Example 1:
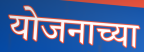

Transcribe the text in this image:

योजनाच्या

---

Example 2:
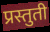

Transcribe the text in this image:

प्रस्तुती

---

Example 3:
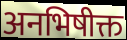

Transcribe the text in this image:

अनभिषीक्त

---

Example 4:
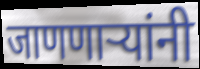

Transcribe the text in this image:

जाणणाऱ्यांनी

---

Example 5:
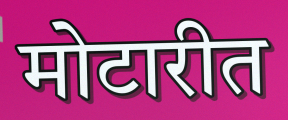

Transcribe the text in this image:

मोटारीत